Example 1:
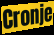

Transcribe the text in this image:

Cronje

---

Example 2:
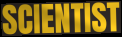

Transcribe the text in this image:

SCIENTIST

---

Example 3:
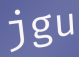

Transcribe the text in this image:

jgu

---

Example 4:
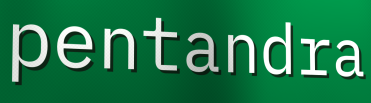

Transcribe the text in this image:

pentandra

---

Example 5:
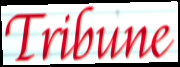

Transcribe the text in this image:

Tribune